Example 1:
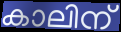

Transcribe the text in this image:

കാലിന്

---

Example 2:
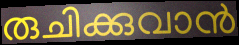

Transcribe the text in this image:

രുചിക്കുവാൻ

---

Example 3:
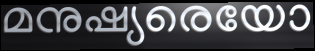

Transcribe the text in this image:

മനുഷ്യരെയോ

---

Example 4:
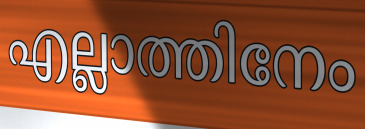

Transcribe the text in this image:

എല്ലാത്തിനേം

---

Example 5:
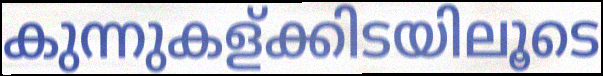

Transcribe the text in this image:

കുന്നുകള്ക്കിടയിലൂടെ